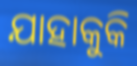
ଯାହାକୁକି